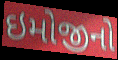
ઇમોજીનો